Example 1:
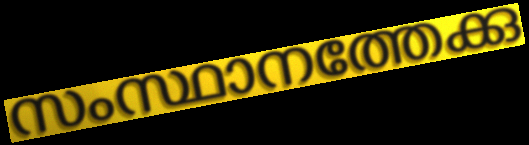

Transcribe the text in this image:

സംസ്ഥാനത്തേക്കു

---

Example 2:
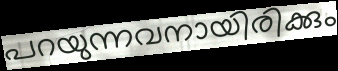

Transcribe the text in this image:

പറയുന്നവനായിരിക്കും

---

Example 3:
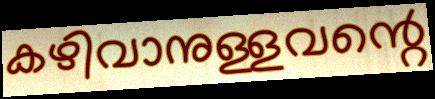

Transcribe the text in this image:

കഴിവാനുള്ളവന്റെ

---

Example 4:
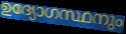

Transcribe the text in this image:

ഉദ്യോഗസ്ഥനും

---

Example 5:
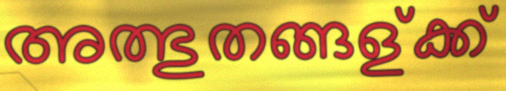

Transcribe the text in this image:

അത്ഭുതങ്ങള്ക്ക്